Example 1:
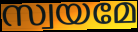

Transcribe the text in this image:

സ്വയമേ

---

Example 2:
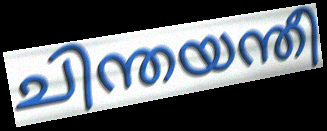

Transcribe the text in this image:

ചിന്തയന്തീ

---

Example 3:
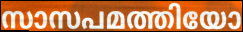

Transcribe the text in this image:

സാസപമത്തിയോ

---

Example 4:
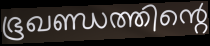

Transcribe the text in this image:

ഭൂഖണ്ഡത്തിന്റെ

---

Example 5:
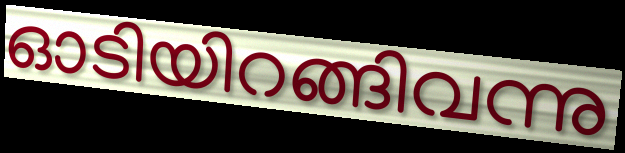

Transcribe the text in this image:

ഓടിയിറങ്ങിവന്നു